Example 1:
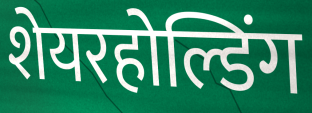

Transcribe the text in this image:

शेयरहोल्डिंग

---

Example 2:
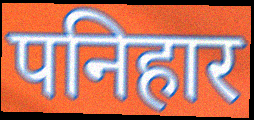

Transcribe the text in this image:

पनिहार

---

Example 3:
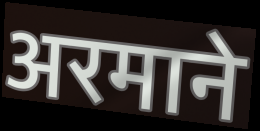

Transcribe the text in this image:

अरमाने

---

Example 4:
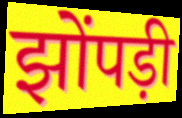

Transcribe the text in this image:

झोंपड़ी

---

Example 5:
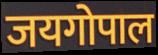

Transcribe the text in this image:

जयगोपाल